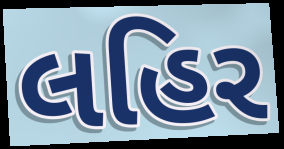
લહિર